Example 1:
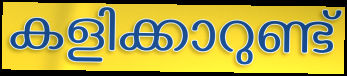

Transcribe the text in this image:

കളിക്കാറുണ്ട്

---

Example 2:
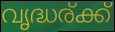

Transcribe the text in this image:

വൃദ്ധര്ക്ക്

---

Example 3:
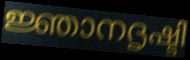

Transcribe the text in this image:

ജ്ഞാനദൃഷ്ടി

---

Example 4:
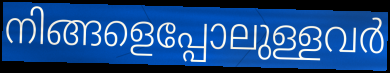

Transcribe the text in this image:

നിങ്ങളെപ്പോലുള്ളവർ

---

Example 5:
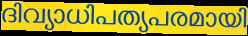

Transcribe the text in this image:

ദിവ്യാധിപത്യപരമായി